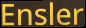
Ensler